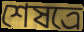
শেষত্রে